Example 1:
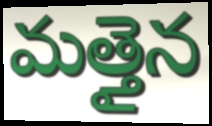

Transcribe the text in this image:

మత్తైన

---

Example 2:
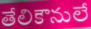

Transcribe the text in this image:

తేలికౌనులే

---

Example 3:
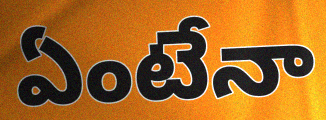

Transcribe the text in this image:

ఏంటేనా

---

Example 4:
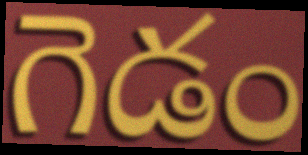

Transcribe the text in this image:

గెడం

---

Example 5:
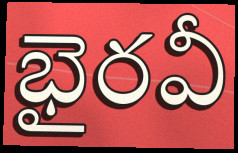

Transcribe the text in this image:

భైరవీ